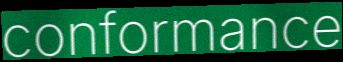
conformance